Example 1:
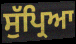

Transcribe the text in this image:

ਸੁੱਪ੍ਰਿਆ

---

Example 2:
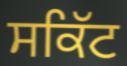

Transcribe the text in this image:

ਸਕਿੱਟ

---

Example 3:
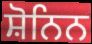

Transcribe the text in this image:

ਸ਼ੋਨਿਨ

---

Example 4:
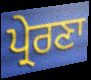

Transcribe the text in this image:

ਪ੍ਰੇਰਣਾ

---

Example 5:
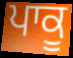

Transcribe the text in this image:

ਪਾਕੂ